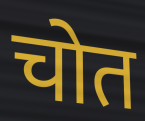
चोत